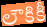
లౌకికీ